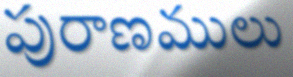
పురాణములు